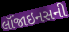
લૉંજાઇનસની